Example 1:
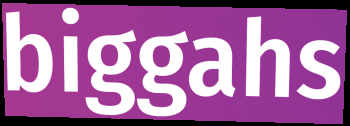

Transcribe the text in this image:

biggahs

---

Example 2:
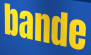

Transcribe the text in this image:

bande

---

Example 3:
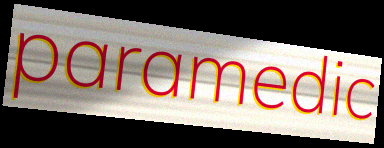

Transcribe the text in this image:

paramedic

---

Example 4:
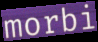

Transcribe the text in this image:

morbi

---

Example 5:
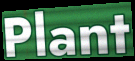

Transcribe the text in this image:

Plant